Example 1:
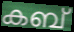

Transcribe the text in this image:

കബ്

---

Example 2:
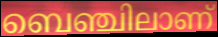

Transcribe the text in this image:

ബെഞ്ചിലാണ്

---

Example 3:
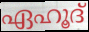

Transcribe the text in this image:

ഏഹൂദ്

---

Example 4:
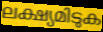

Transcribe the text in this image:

ലക്ഷ്യമിടുക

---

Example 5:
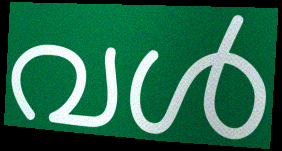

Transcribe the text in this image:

വൾ